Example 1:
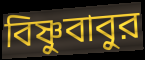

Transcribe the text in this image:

বিষ্ণুবাবুর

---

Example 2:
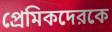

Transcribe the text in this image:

প্রেমিকদেরকে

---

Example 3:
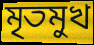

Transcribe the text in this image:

মৃতমুখ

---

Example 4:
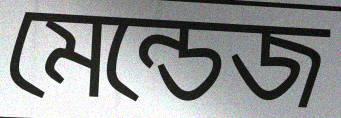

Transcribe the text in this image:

মেন্ডেজ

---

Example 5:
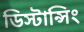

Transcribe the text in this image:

ডিস্টান্সিং